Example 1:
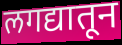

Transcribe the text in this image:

लगद्यातून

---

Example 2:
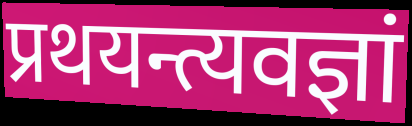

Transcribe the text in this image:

प्रथयन्त्यवज्ञां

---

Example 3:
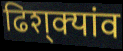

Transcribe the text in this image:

ढिश्क्यांव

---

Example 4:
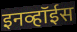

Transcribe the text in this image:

इनव्हॉईस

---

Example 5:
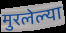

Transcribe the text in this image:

मुरलेल्या